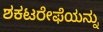
ಶಕಟರೇಫೆಯನ್ನು